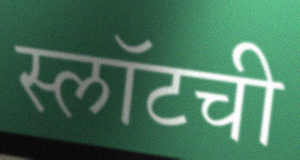
स्लॉटची